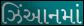
ઝિંઆનમાં